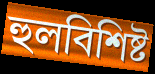
হুলবিশিষ্ট